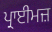
ਪ੍ਰਾਈਮਜ਼